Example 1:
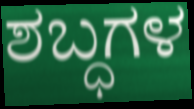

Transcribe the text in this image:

ಶಬ್ಧಗಳ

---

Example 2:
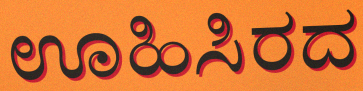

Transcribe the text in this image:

ಊಹಿಸಿರದ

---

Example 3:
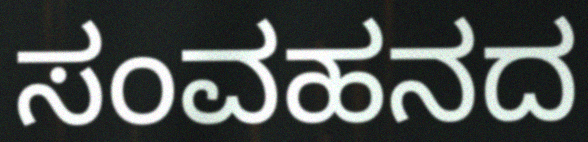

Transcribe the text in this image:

ಸಂವಹನದ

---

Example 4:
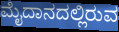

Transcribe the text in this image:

ಮೈದಾನದಲ್ಲಿರುವ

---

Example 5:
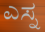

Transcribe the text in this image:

ಎಸ್ನ